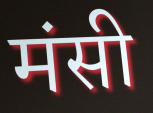
मंसी